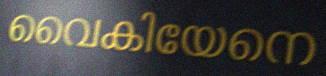
വൈകിയേനെ